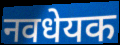
नवधेयक